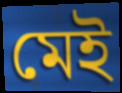
মেই